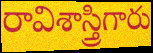
రావిశాస్త్రిగారు